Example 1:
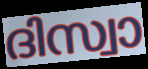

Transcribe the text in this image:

ദിസ്വാ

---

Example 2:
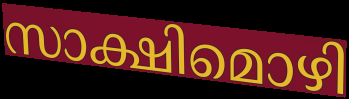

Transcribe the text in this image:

സാക്ഷിമൊഴി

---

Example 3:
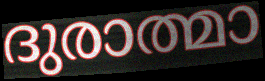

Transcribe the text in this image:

ദുരാത്മാ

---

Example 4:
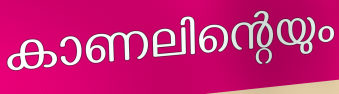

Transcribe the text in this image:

കാണലിന്റെയും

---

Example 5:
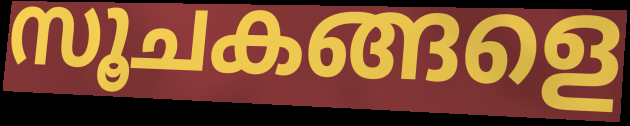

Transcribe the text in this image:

സൂചകങ്ങളെ